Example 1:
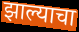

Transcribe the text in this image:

झाल्‍याचा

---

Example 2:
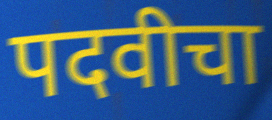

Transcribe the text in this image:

पदवीचा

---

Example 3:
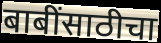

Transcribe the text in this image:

बाबींसाठीचा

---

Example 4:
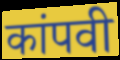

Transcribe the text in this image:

कांपवी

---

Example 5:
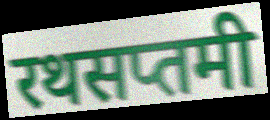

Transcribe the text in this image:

रथसप्तमी